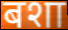
बशा